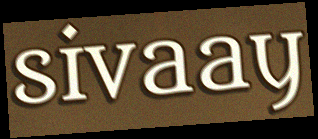
sivaay